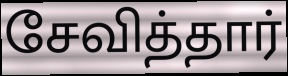
சேவித்தார்